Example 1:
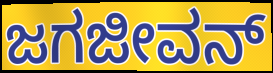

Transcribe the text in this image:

ಜಗಜೀವನ್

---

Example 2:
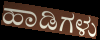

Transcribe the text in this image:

ಹಾಡಿಗಳು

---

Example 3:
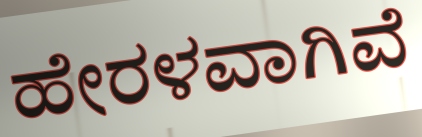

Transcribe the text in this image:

ಹೇರಳವಾಗಿವೆ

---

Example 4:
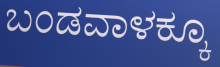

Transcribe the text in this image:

ಬಂಡವಾಳಕ್ಕೂ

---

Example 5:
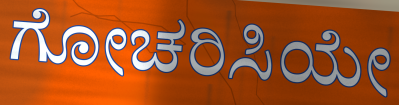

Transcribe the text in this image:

ಗೋಚರಿಸಿಯೇ